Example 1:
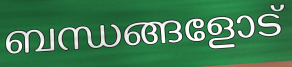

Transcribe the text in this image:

ബന്ധങ്ങളോട്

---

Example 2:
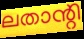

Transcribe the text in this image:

ലതാന്റി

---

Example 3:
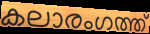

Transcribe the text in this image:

കലാരംഗത്ത്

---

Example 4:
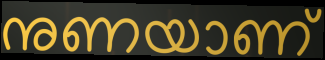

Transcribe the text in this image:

നുണയാണ്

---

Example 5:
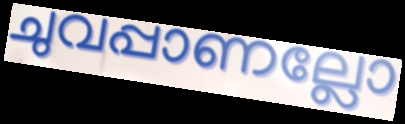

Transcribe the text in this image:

ചുവപ്പാണല്ലോ